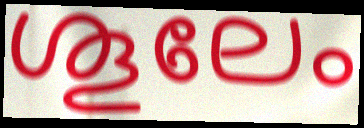
ശൂലേം